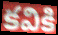
కవికి